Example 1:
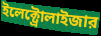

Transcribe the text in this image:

ইলেক্ট্রোলাইজার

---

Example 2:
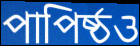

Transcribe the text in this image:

পাপিষ্ঠও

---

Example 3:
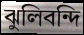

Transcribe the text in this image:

ঝুলিবন্দি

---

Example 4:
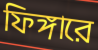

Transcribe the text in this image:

ফিঙ্গারে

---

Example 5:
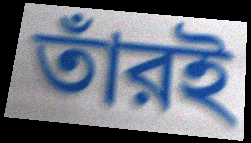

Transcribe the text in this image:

তাঁরই